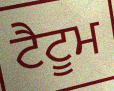
ਟੈਟੂਮ